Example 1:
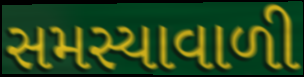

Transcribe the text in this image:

સમસ્યાવાળી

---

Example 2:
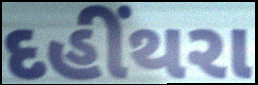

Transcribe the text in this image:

દહીંથરા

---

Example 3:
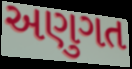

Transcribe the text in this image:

અણુગત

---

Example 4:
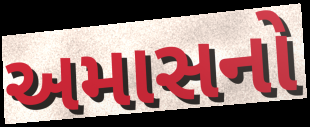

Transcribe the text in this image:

અમાસનો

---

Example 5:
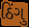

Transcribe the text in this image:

ઠિંગુ